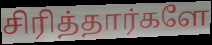
சிரித்தார்களே